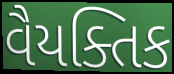
વૈયક્તિક